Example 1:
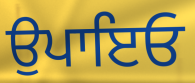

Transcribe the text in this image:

ਉਪਾਇਓ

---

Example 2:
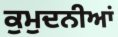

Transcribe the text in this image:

ਕੁਮੁਦਨੀਆਂ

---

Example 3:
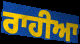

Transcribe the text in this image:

ਰਾਹੀਆ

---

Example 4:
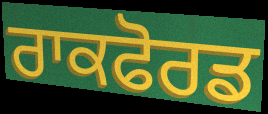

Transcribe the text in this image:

ਰਾਕਫੋਰਡ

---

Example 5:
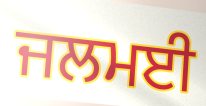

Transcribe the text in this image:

ਜਲਮਈ